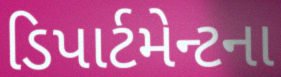
ડિપાર્ટમેન્ટના